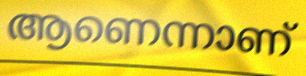
ആണെന്നാണ്